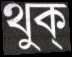
থুক্